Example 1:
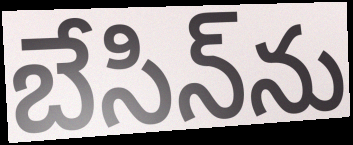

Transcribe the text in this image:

బేసిన్‌ను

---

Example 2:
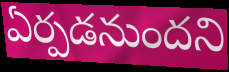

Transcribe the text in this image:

ఏర్పడనుందని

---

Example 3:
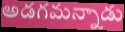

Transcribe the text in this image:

అడగమన్నాడు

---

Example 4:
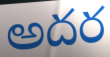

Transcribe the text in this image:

అదర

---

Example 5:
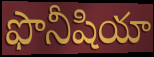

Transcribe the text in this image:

ఫొనీషియా